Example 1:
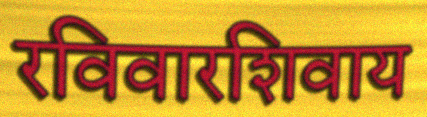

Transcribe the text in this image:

रविवारशिवाय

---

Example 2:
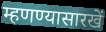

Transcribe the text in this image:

म्हणण्यासारखें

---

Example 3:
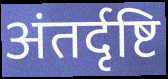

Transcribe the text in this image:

अंतर्दृष्टि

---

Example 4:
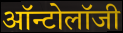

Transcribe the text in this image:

ऑन्टोलॉजी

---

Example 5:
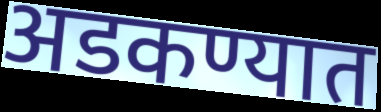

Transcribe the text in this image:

अडकण्यात